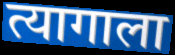
त्यागाला